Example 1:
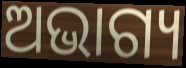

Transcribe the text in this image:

ଅଭାଗ୍ୟ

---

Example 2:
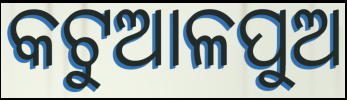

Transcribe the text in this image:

କଟୁଆଳପୁଅ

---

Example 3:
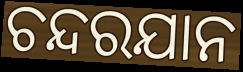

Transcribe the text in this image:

ଚନ୍ଦରଯାନ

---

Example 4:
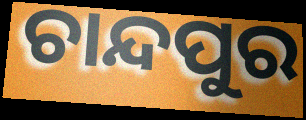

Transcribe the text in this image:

ଚାନ୍ଦପୁର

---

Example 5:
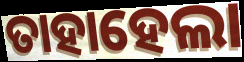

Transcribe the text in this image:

ତାହାହେଲା